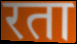
रता